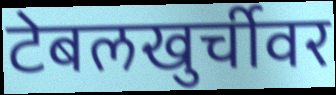
टेबलखुर्चीवर